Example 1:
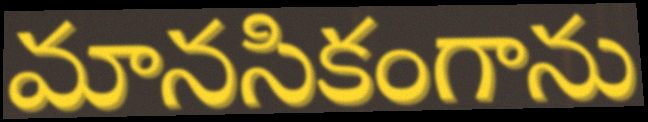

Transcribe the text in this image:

మానసికంగాను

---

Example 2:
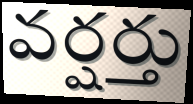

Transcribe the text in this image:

వర్షర్తు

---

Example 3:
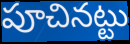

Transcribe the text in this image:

పూచినట్టు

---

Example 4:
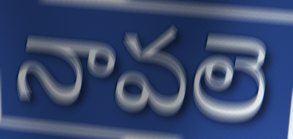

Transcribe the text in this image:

నావలె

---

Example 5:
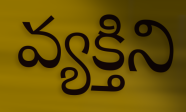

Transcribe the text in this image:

వ్యక్తిని